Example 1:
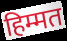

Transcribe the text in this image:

हिम्‍मत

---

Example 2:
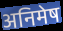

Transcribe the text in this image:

अनिमेष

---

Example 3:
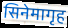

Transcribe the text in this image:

सिनेमागृह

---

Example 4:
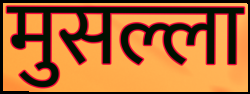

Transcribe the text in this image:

मुसल्ला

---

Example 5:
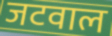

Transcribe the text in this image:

जटवाल